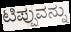
ಟಿಪ್ಪುವನ್ನು